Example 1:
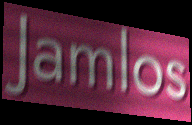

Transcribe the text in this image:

Jamlos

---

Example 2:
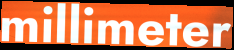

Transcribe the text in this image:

millimeter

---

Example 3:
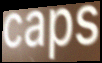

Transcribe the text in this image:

caps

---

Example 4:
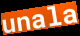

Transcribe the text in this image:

unala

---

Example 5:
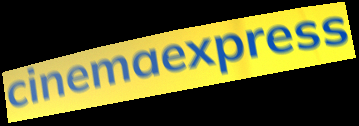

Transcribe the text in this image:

cinemaexpress